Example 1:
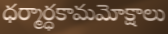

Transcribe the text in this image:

ధర్మార్ధకామమోక్షాలు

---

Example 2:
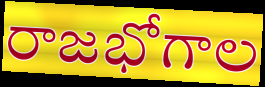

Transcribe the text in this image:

రాజభోగాల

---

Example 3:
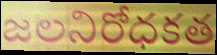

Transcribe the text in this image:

జలనిరోధకత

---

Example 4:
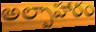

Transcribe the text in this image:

అల్పాహారం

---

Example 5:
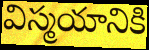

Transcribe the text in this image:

విస్మయానికి